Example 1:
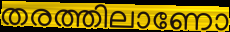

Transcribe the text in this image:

തരത്തിലാണോ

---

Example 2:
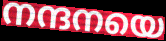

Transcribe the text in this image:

നന്ദനയെ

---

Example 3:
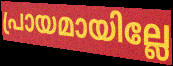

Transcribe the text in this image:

പ്രായമായില്ലേ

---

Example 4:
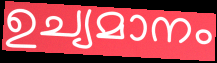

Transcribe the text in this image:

ഉച്യമാനം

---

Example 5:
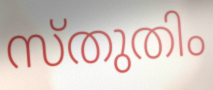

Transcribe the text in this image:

സ്തുതിം